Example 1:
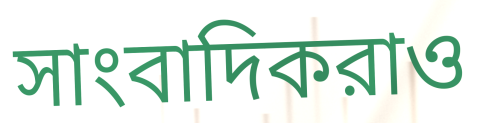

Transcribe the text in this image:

সাংবাদিকরাও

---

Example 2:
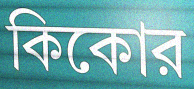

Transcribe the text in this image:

কিকোর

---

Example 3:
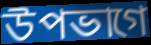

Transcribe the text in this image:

উপভাগে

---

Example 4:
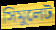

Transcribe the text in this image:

সিমুলেট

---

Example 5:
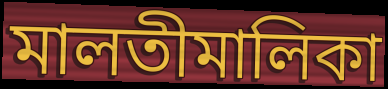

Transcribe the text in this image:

মালতীমালিকা